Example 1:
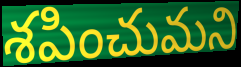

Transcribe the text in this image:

శపించుమని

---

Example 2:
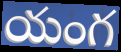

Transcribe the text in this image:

యంగ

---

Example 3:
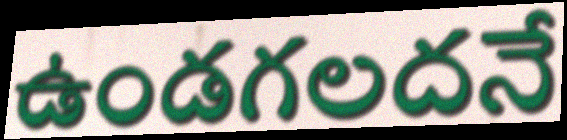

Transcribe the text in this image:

ఉండగలదనే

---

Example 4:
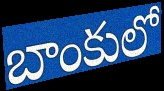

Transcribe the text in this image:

బాంకులో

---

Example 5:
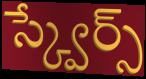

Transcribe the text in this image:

స్క్వేర్స్